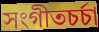
সংগীতচর্চা